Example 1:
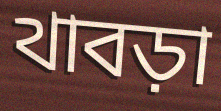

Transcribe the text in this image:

থাবড়া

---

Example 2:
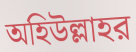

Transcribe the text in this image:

অহিউল্লাহর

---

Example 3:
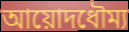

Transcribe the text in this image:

আয়োদধৌম্য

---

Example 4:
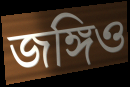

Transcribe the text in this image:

জঙ্গিও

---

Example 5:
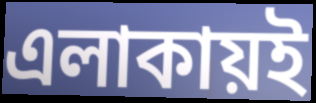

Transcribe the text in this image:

এলাকায়ই